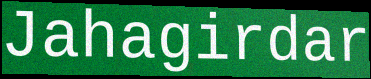
Jahagirdar